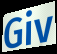
Giv